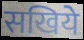
सखिये